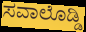
ಸವಾಲೊಡ್ಡಿ